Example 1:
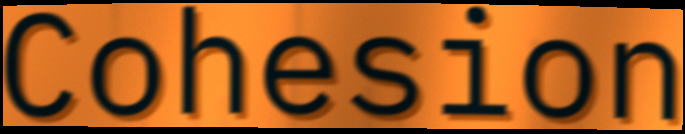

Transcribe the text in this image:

Cohesion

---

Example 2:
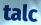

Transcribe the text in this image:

talc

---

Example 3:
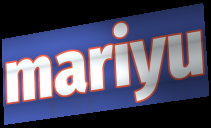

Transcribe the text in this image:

mariyu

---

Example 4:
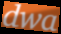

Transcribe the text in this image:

dwa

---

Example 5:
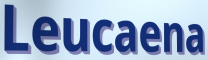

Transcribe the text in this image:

Leucaena